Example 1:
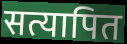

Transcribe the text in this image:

सत्यापित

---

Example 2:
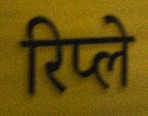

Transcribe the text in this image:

रिप्ले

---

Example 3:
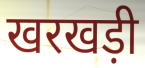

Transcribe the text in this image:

खरखड़ी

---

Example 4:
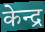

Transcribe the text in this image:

केन्द्र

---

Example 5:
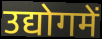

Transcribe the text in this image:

उद्योगमें